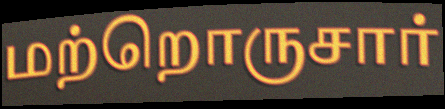
மற்றொருசார்